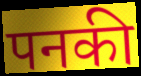
पनकी